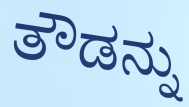
ತೌಡನ್ನು